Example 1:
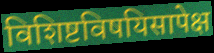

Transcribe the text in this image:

विशिष्टविषयिसापेक्ष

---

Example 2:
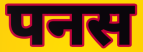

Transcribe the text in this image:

पनस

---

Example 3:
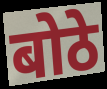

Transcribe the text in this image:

बोठे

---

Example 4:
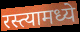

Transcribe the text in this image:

रस्त्यामध्ये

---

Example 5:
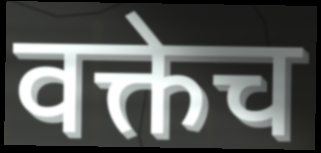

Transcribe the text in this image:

वक्तेच